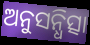
ଅନୁସନ୍ଧିତ୍ସା